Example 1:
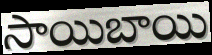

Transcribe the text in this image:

సాయిబాయి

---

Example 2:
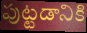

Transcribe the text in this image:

పుట్టడానికి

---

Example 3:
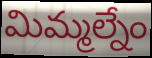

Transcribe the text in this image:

మిమ్మల్నేం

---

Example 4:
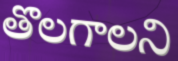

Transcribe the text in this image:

తొలగాలని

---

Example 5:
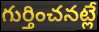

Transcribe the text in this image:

గుర్తించనట్లే